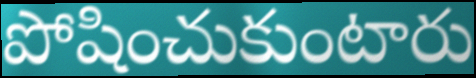
పోషించుకుంటారు